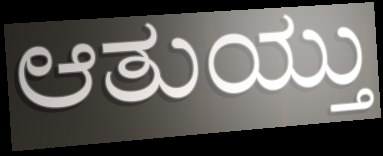
ಆತುಯ್ತು